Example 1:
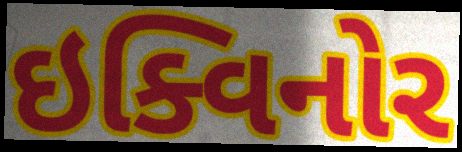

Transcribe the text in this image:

ઇક્વિનોર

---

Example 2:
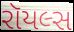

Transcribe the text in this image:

રૉયલ્સ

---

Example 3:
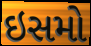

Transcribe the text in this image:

ઇસમો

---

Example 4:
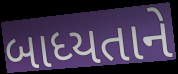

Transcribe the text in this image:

બાધ્યતાને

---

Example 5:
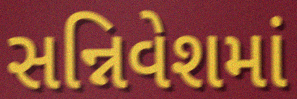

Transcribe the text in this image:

સન્નિવેશમાં